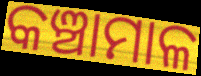
କଞ୍ଚାମାଳ